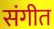
संगीत